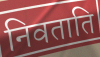
निवताति